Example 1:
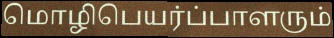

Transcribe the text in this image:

மொழிபெயர்ப்பாளரும்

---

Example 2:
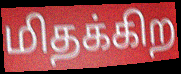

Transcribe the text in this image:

மிதக்கிற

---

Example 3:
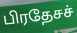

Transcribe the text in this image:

பிரதேசச்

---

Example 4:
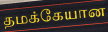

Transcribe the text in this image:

தமக்கேயான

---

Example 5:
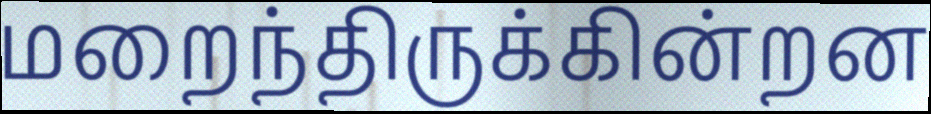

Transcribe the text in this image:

மறைந்திருக்கின்றன